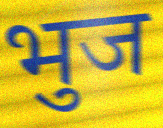
भुज